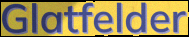
Glatfelder